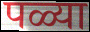
पळ्या